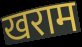
खराम